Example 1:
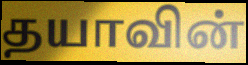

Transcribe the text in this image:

தயாவின்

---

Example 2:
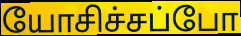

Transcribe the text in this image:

யோசிச்சப்போ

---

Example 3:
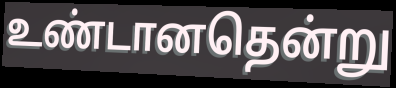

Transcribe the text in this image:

உண்டானதென்று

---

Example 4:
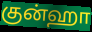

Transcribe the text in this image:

குன்ஹா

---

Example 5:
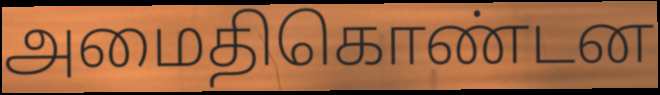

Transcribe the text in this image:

அமைதிகொண்டன